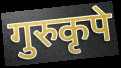
गुरुकृपे